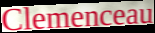
Clemenceau